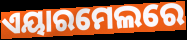
ଏୟାରମେଲରେ